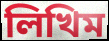
লিখিম